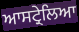
ਆਸਟ੍ਰੇਲਿਆ